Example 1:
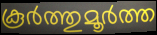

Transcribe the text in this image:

കൂർത്തുമൂർത്ത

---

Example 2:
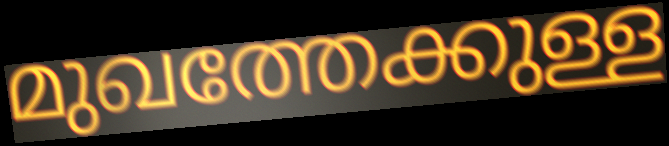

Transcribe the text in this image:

മുഖത്തേക്കുള്ള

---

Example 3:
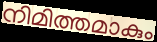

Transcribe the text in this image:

നിമിത്തമാകും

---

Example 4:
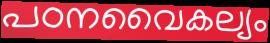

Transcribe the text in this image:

പഠനവൈകല്യം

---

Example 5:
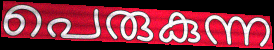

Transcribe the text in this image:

പെരുകുന്ന